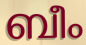
ബീം